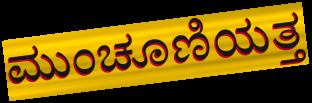
ಮುಂಚೂಣಿಯತ್ತ